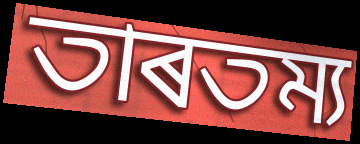
তাৰতম্য